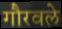
गौरवले